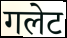
गलेट